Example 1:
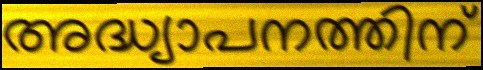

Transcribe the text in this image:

അദ്ധ്യാപനത്തിന്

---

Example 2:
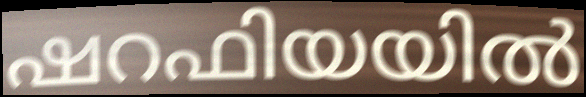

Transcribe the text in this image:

ഷറഫിയയിൽ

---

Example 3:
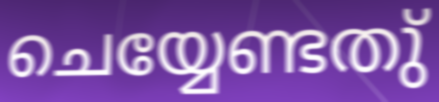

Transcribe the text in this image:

ചെയ്യേണ്ടതു്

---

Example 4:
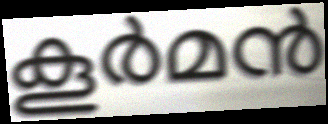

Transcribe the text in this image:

കൂർമൻ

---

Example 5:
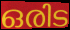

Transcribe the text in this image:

ഒരിട